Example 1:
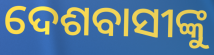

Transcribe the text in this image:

ଦେଶବାସୀଙ୍କୁ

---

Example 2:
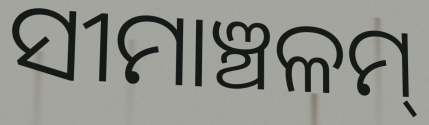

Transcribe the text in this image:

ସୀମାଞ୍ଚଳମ୍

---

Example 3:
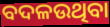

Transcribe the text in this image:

ବଦଳଉଥିବା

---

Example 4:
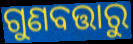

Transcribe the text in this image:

ଗୁଣବତ୍ତାରୁ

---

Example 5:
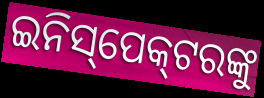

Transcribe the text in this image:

ଇନିସ୍‌ପେକ୍‌ଟରଙ୍କୁ